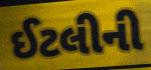
ઈટલીની